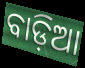
ବାଡ଼ିଆ